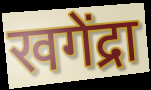
खगेंद्रा